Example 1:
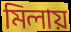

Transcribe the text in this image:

মিলায়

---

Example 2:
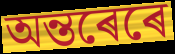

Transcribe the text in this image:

অন্তৰেৰে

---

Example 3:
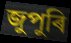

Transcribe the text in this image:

জুপুৰি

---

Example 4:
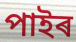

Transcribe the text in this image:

পাইৰ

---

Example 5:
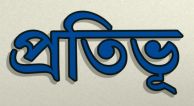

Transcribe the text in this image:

প্ৰতিভূ